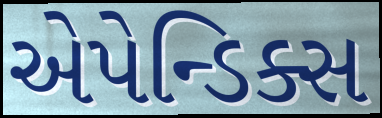
એપેન્ડિક્સ